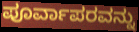
ಪೂರ್ವಾಪರವನ್ನು